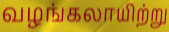
வழங்கலாயிற்று